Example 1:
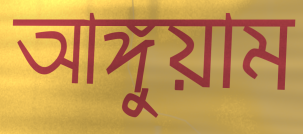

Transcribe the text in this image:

আঙ্গুয়াম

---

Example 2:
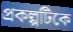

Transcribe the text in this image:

প্রকল্পটিকে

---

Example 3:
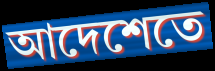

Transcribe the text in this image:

আদেশেতে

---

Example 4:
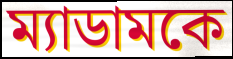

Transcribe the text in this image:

ম্যাডামকে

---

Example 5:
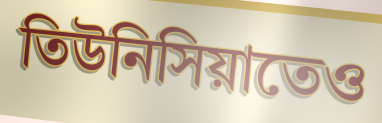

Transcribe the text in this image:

তিউনিসিয়াতেও